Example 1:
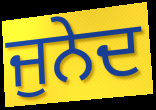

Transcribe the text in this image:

ਜੁਨੇਦ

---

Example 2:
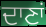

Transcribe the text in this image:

ਦਾਣਾਂ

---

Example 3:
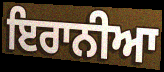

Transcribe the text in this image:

ਇਰਾਨੀਆ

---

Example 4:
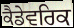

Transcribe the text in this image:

ਕੈਡੇਵਰਿਕ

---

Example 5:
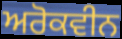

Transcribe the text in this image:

ਅਰੋਕਵੀਨ